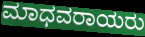
ಮಾಧವರಾಯರು